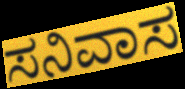
ಸನಿವಾಸ